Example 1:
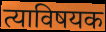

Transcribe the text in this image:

त्याविषयक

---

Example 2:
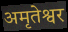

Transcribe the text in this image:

अमृतेश्वर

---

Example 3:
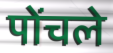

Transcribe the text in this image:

पोंचले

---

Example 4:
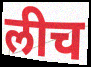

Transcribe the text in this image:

लीच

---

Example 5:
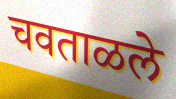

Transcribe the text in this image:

चवताळले